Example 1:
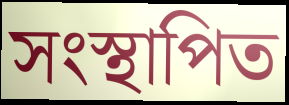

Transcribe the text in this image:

সংস্থাপিত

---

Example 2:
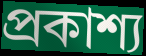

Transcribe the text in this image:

প্ৰকাশ্য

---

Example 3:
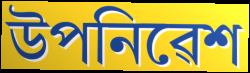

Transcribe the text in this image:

উপনিৱেশ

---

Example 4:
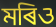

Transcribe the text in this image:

মৰিও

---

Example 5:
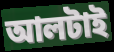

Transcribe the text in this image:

আলটাই